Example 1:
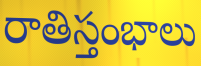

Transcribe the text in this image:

రాతిస్తంభాలు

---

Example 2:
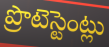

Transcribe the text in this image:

ప్రొటెస్టెంట్లు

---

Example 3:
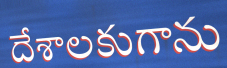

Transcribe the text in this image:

దేశాలకుగాను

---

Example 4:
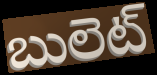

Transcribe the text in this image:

బులెట్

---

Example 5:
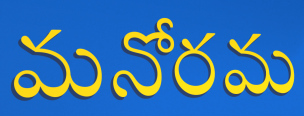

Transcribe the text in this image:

మనోరమ